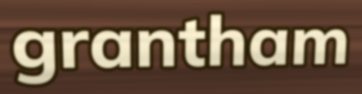
grantham